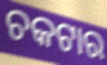
ଚକଟାର